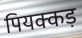
पियक्कड़